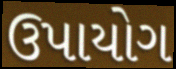
ઉપાયોગ